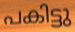
പകിട്ടു